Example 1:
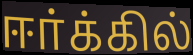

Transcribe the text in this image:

ஈர்க்கில்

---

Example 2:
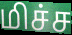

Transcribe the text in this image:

மிச்ச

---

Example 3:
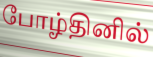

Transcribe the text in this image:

போழ்தினில்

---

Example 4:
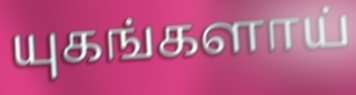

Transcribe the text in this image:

யுகங்களாய்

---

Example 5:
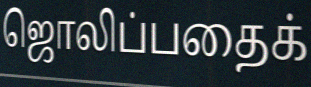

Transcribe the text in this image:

ஜொலிப்பதைக்